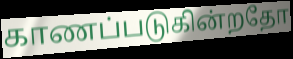
காணப்படுகின்றதோ